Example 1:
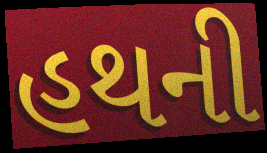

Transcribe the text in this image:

હથની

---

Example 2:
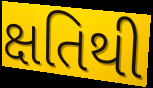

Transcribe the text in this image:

ક્ષતિથી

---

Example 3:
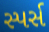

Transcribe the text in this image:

સ્પર્સ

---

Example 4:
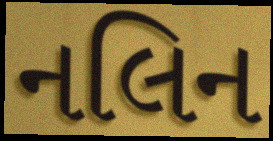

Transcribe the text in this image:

નલિન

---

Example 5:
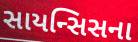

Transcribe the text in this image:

સાયન્સિસના